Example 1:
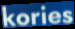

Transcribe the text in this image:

kories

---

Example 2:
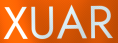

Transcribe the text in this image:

XUAR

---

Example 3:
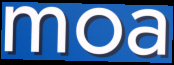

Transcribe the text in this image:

moa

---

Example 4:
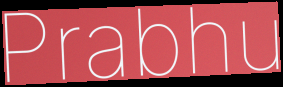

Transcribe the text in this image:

Prabhu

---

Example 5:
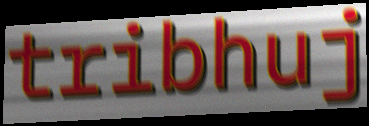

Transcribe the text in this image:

tribhuj